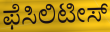
ಫೆಸಿಲಿಟೀಸ್